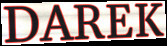
DAREK